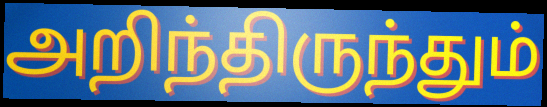
அறிந்திருந்தும்